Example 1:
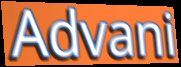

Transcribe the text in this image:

Advani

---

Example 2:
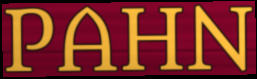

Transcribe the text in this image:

PAHN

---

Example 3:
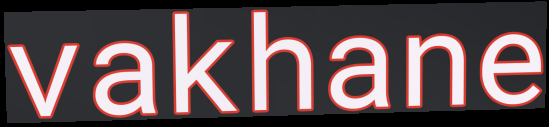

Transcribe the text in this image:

vakhane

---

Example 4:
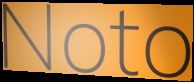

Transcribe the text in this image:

Noto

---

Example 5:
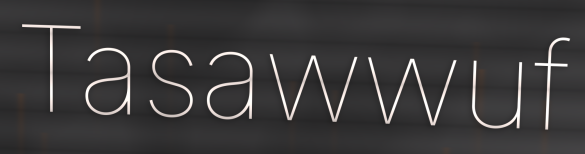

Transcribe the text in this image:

Tasawwuf